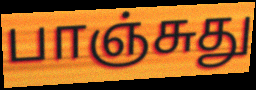
பாஞ்சுது